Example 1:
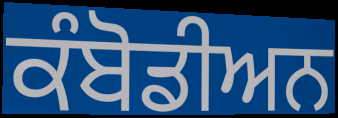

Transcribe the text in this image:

ਕੰਬੋਡੀਅਨ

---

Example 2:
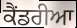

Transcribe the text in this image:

ਕੈਂਡਰੀਆ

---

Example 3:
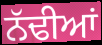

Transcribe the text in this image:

ਨੱਢੀਆਂ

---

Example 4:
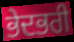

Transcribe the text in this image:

ਭੇਦਭਰੀ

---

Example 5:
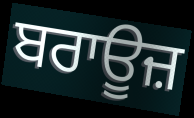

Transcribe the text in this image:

ਬਰਾਊਜ਼